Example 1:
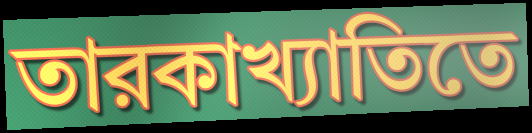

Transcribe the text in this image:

তারকাখ্যাতিতে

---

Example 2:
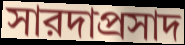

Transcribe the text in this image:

সারদাপ্রসাদ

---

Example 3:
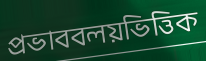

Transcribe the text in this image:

প্রভাববলয়ভিত্তিক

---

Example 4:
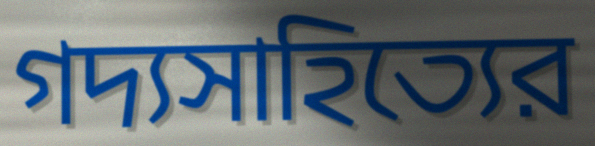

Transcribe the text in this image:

গদ্যসাহিত্যের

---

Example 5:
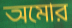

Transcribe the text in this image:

অমোর